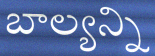
బాల్యన్ని